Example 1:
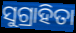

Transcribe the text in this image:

ସୁଗ୍ରାହିତା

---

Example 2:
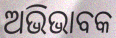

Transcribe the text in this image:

ଅଭିଭାବକ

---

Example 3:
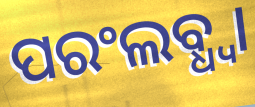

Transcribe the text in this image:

ପରଂଲବ୍ଧ୍ଵା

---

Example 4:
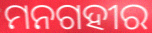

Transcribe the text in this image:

ମନଗହୀର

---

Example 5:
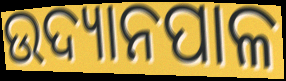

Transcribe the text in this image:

ଉଦ୍ୟାନପାଳ